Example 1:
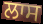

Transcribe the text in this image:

ਲਾਸ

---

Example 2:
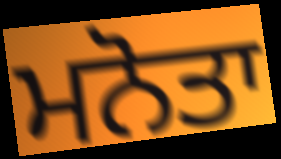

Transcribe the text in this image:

ਮਨੋਤਾ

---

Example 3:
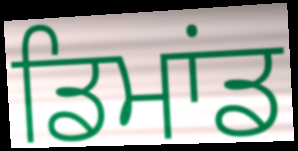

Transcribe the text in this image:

ਡਿਮਾਂਡ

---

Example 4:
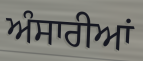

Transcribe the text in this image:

ਅੰਸਾਰੀਆਂ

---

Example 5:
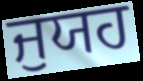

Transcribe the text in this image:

ਜੁਯਹ